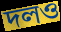
দলও